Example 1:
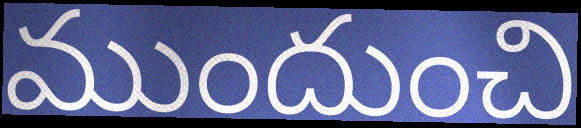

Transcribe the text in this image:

ముందుంచి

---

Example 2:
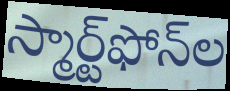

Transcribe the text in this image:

స్మార్ట్‌ఫోన్‌ల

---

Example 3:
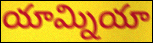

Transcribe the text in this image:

యామ్నియా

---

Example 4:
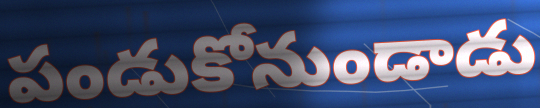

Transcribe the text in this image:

పండుకోనుండాడు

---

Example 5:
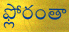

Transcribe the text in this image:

ఫ్లోరంతా